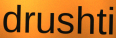
drushti